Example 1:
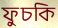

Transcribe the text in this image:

ফুচকি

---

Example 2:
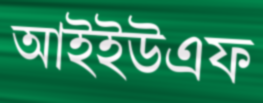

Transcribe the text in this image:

আইইউএফ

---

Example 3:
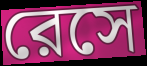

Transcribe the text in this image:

রেসে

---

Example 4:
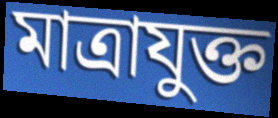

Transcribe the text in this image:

মাত্রাযুক্ত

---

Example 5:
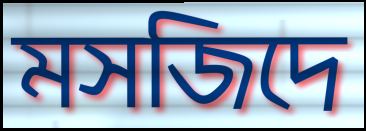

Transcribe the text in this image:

মসজিদে